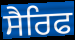
ਸੈਰਿਫ